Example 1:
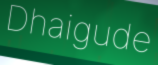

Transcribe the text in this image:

Dhaigude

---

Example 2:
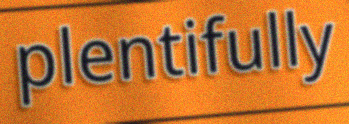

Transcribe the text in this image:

plentifully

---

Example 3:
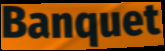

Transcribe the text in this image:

Banquet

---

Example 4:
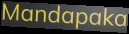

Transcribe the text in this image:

Mandapaka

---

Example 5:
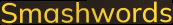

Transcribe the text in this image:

Smashwords